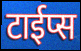
टाईप्स